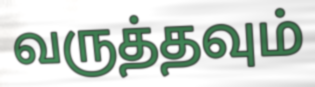
வருத்தவும்